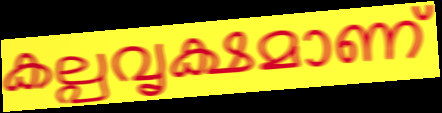
കല്പവൃക്ഷമാണ്